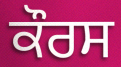
ਕੌਰਸ